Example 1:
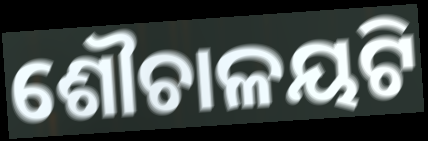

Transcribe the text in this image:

ଶୌଚାଳୟଟି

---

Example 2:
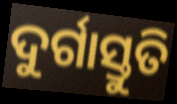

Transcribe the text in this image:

ଦୁର୍ଗାସ୍ତୁତି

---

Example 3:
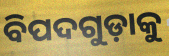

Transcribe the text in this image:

ବିପଦଗୁଡ଼ାକୁ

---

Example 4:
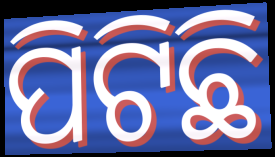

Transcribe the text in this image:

ପିଟିଛି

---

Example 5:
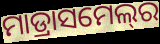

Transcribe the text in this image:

ମାଡ୍ରାସମେଲ୍‍ର